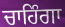
ਚਾਹਿੰਗਾ